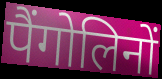
पैंगोलिनों